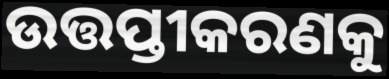
ଉତ୍ତପ୍ତୀକରଣକୁ